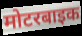
मोटरबाइक